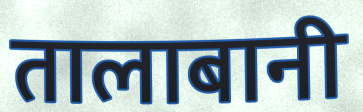
तालाबानी